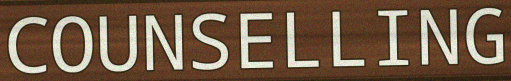
COUNSELLING